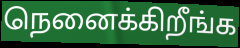
நெனைக்கிறீங்க